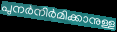
പുനർനിർമിക്കാനുള്ള